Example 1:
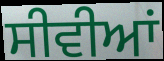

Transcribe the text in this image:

ਸੀਵੀਆਂ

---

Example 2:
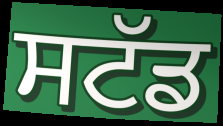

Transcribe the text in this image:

ਸਟੱਡ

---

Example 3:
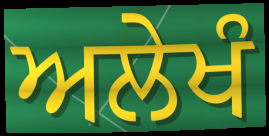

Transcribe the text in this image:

ਅਲੇਖੰ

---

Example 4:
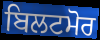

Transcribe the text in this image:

ਬਿਲਟਮੋਰ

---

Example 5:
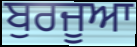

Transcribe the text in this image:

ਬੁਰਜੂਆ